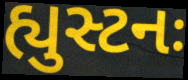
હ્યુસ્ટનઃ